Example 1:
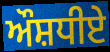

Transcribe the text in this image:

ਔਸ਼ਧੀਏ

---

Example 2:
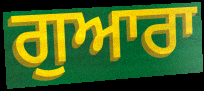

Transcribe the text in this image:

ਗੁਆਰਾ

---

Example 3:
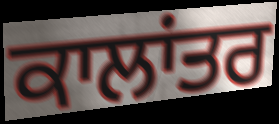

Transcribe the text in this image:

ਕਾਲਾਂਤਰ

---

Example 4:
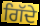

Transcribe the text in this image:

ਗਿੱਦੇ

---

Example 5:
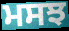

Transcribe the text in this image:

ਮਸਝ